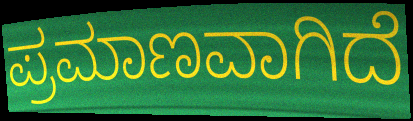
ಪ್ರಮಾಣವಾಗಿದೆ